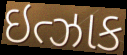
ઇત્ઝાક